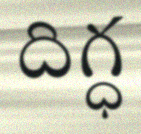
దిగ్ధ